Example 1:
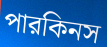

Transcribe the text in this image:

পারকিনস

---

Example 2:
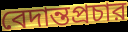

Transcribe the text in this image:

বেদান্তপ্রচার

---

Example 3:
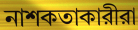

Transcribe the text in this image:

নাশকতাকারীরা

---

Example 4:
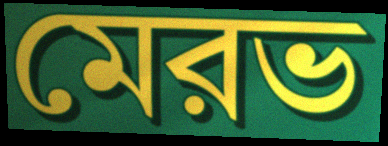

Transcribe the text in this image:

মেরভ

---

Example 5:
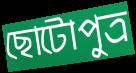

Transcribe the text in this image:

ছোটোপুত্র